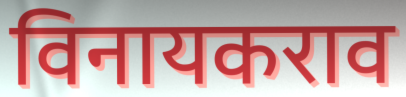
विनायकराव